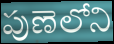
పుణెలోని